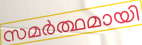
സമർത്ഥമായി